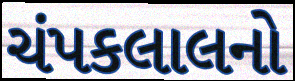
ચંપકલાલનો